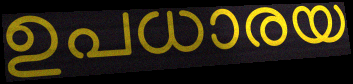
ഉപധാരയ